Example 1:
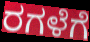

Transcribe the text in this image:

ರಗಳೆಗೆ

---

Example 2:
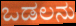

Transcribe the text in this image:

ಒಡಲನು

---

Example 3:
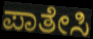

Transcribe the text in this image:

ಪಾತೇಸಿ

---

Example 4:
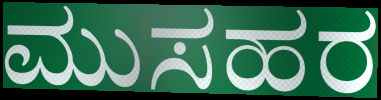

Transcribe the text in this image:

ಮುಸಹರ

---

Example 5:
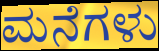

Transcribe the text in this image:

ಮನೆಗಳು